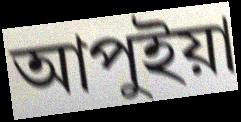
আপুইয়া